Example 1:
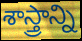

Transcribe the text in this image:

శాస్త్రాన్ని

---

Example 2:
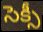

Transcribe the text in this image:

సెక్సీ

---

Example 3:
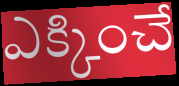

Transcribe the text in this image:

ఎక్కించే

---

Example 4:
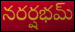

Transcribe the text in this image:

నరర్షభమ్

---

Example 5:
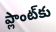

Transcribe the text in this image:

ప్లాంట్‌కు